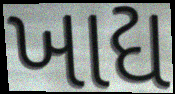
ખાદ્ય